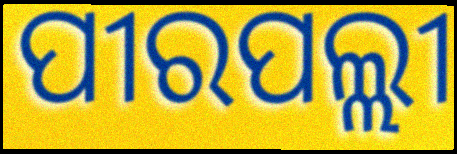
ପୀରପଲ୍ଲୀ